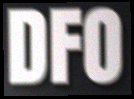
DFO